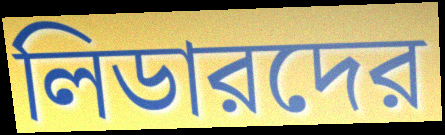
লিডারদের